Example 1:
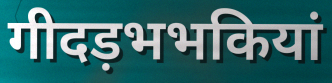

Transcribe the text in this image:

गीदड़भभकियां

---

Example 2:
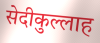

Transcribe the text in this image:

सेदीकुल्लाह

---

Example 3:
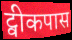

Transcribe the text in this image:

ट्वीकपास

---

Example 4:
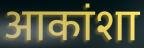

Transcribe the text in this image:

आकांशा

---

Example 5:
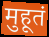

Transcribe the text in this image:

मुहूतं